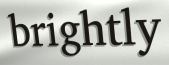
brightly